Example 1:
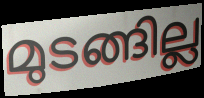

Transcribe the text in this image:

മുടങ്ങില്ല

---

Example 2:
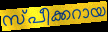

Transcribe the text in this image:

സ്പീക്കറായ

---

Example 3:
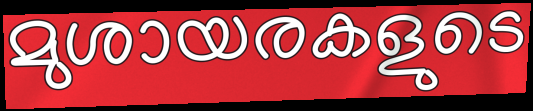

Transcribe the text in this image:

മുശായരകളുടെ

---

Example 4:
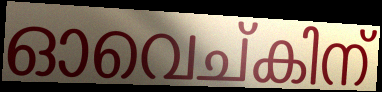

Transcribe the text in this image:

ഓവെച്കിന്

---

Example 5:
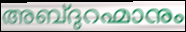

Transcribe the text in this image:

അബ്ദുറഹ്മാനും